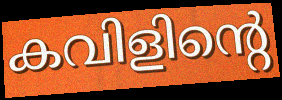
കവിളിന്റെ